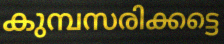
കുമ്പസരിക്കട്ടെ